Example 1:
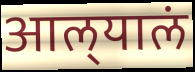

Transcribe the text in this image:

आल्यालं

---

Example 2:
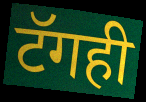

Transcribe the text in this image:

टॅगही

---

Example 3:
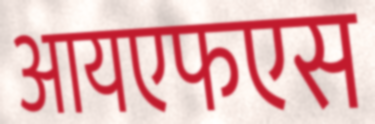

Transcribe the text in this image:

आयएफएस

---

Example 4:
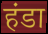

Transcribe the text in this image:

हंडा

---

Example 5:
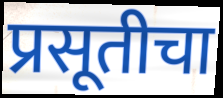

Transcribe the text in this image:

प्रसूतीचा